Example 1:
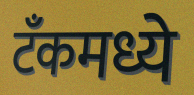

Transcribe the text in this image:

टॅंकमध्ये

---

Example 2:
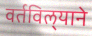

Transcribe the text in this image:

वर्तविल्याने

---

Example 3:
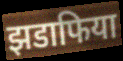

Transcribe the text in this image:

झडाफिया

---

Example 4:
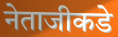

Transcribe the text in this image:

नेताजीकडे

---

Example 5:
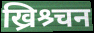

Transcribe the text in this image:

ख्रिश्र्चन